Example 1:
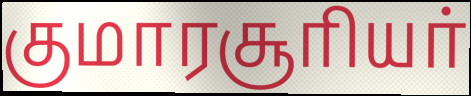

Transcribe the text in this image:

குமாரசூரியர்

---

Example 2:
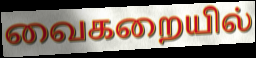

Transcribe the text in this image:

வைகறையில்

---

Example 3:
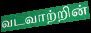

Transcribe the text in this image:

வடவாற்றின்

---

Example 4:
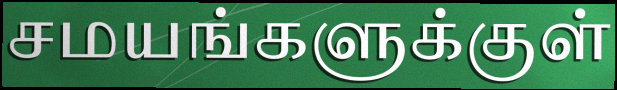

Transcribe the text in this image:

சமயங்களுக்குள்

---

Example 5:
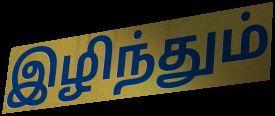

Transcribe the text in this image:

இழிந்தும்